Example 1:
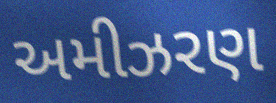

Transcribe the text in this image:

અમીઝરણ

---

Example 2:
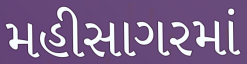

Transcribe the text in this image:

મહીસાગરમાં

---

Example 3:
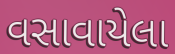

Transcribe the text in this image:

વસાવાયેલા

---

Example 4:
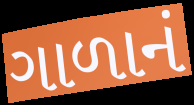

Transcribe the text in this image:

ગાળાનં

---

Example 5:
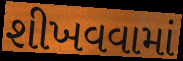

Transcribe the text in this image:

શીખવવામાં